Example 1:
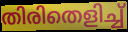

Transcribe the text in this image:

തിരിതെളിച്ച്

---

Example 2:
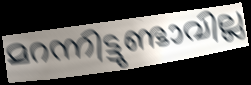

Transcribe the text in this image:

മറന്നിട്ടുണ്ടാവില്ല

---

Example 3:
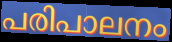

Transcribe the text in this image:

പരിപാലനം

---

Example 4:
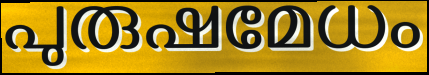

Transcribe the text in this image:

പുരുഷമേധം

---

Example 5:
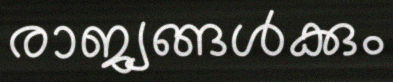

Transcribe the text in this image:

രാജ്യങ്ങൾക്കും